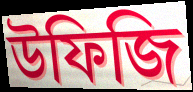
উফিজি